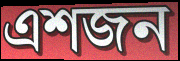
এশজন